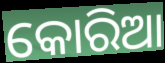
କୋରିଆ